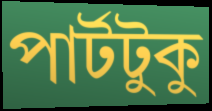
পার্টটুকু